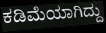
ಕಡಿಮೆಯಾಗಿದ್ದು